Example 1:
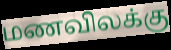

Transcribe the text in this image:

மணவிலக்கு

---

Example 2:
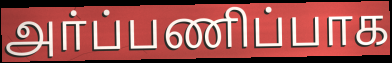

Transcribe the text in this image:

அர்ப்பணிப்பாக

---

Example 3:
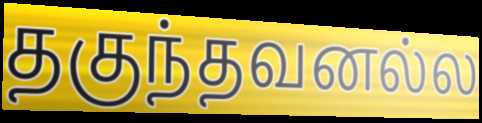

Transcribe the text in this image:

தகுந்தவனல்ல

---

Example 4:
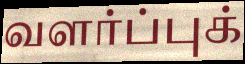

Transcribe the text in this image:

வளர்ப்புக்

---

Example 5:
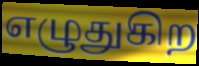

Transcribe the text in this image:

எழுதுகிற